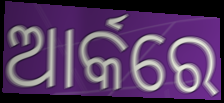
ଆର୍କରେ